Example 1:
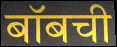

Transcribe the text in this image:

बॉबची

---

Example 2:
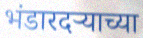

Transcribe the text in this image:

भंडारदर्‍याच्या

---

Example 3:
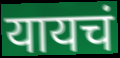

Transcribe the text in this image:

यायचं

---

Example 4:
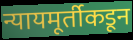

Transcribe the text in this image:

न्यायमूर्तीकडून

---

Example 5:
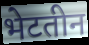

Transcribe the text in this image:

भेटतीन